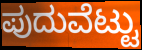
ಪುದುವೆಟ್ಟು